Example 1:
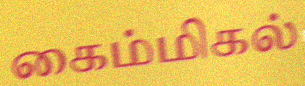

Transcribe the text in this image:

கைம்மிகல்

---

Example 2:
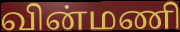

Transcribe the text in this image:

வின்மணி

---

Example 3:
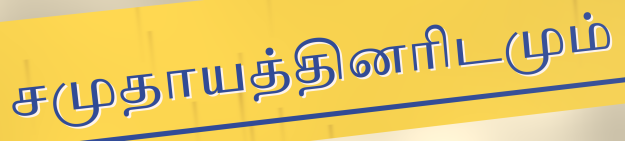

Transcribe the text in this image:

சமுதாயத்தினரிடமும்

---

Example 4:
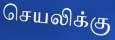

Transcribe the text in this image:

செயலிக்கு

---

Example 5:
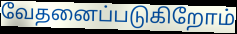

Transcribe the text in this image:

வேதனைப்படுகிறோம்